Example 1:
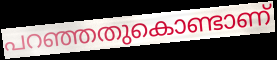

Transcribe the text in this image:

പറഞ്ഞതുകൊണ്ടാണ്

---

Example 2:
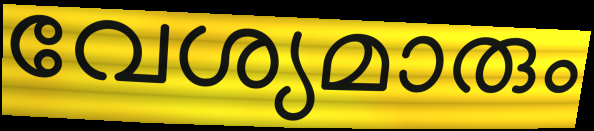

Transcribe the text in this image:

വേശ്യമാരും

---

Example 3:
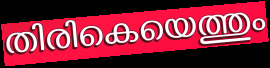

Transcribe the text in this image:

തിരികെയെത്തും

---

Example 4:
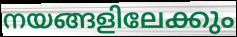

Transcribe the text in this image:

നയങ്ങളിലേക്കും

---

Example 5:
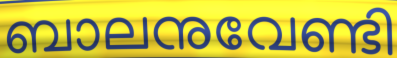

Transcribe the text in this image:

ബാലനുവേണ്ടി